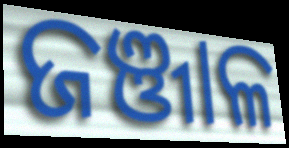
ଜଞ୍ଜାଳ